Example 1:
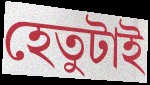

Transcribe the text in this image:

হেতুটাই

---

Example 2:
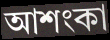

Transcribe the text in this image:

আশংকা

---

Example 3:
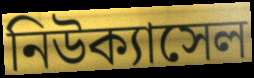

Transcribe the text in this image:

নিউক্যাসেল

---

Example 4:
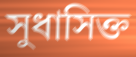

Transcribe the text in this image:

সুধাসিক্ত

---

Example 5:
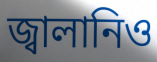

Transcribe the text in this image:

জ্বালানিও